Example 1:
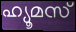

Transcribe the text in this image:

ഹ്യൂമസ്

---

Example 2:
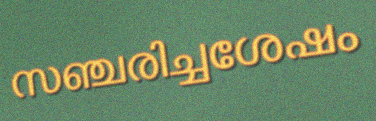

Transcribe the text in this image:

സഞ്ചരിച്ചശേഷം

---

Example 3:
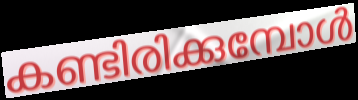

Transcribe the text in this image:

കണ്ടിരിക്കുമ്പോൾ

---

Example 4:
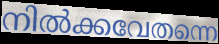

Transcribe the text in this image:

നിൽക്കവേതന്നെ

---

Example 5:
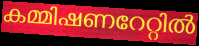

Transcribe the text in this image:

കമ്മിഷണറേറ്റിൽ